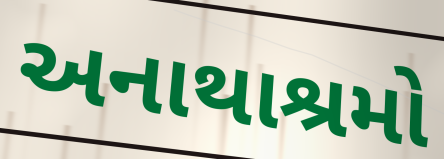
અનાથાશ્રમો